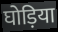
घोड़िया